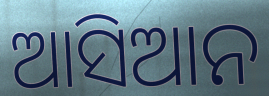
ଆସିଆନ